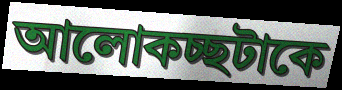
আলোকচ্ছটাকে